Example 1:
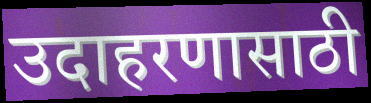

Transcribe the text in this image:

उदाहरणासाठी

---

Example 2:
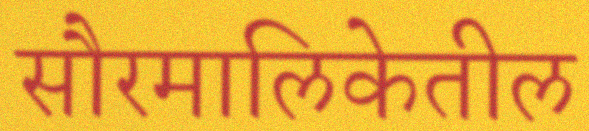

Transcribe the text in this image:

सौरमालिकेतील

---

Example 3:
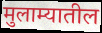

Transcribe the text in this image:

मुलाम्यातील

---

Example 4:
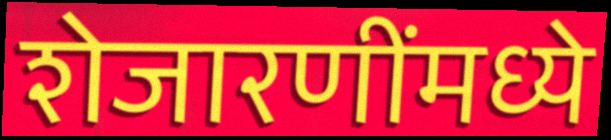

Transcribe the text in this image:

शेजारणींमध्ये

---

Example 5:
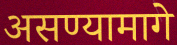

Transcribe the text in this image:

असण्यामागे